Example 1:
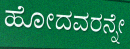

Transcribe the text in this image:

ಹೋದವರನ್ನೇ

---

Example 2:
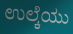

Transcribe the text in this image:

ಉಲ್ಕೆಯು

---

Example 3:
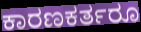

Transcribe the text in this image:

ಕಾರಣಕರ್ತರೂ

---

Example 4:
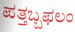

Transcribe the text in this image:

ಪತ್ತಬ್ಬಫಲಂ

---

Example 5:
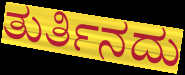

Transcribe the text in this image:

ತುರ್ತಿನದು